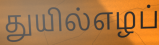
துயில்எழப்